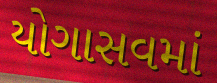
યોગાસવમાં